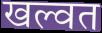
खल्वत